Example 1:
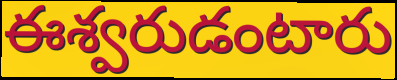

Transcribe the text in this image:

ఈశ్వరుడంటారు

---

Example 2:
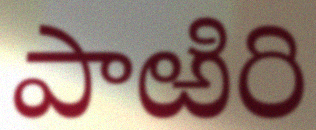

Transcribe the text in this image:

పాఱిరి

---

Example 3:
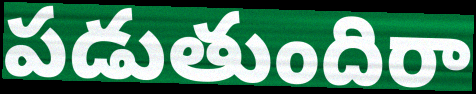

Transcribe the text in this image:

పడుతుందిరా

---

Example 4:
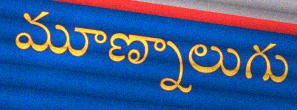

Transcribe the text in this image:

మూణ్నాలుగు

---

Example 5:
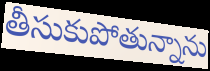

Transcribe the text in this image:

తీసుకుపోతున్నాను